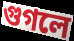
গুগলে